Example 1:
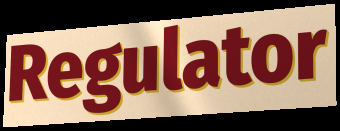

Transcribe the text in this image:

Regulator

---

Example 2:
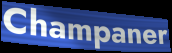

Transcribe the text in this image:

Champaner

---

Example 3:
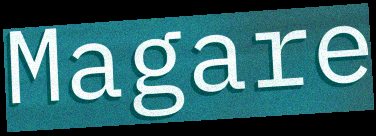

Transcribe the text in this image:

Magare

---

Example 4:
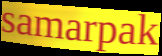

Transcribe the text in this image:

samarpak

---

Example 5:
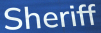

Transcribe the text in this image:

Sheriff